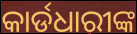
କାର୍ଡଧାରୀଙ୍କ